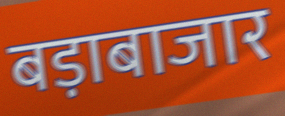
बड़ाबाजार